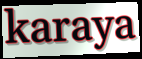
karaya